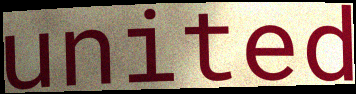
united